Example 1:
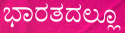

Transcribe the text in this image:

ಭಾರತದಲ್ಲೂ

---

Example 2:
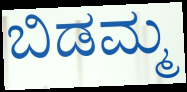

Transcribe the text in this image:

ಬಿಡಮ್ಮ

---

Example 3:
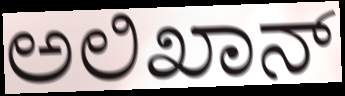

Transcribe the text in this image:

ಅಲಿಖಾನ್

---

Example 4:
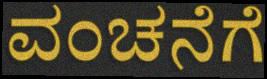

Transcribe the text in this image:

ವಂಚನೆಗೆ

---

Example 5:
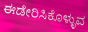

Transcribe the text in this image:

ಈಡೇರಿಸಿಕೊಳ್ಳುವ